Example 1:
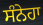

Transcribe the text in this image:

ਸੰਨੇਹਾ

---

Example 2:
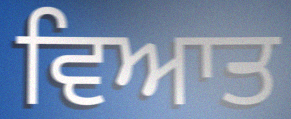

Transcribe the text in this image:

ਵਿਆਤ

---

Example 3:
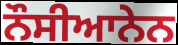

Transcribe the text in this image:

ਨੌਸੀਆਨੇਨ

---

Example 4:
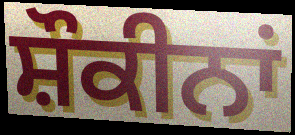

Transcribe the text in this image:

ਸ਼ੌਕੀਨਾਂ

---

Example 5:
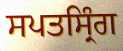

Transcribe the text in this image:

ਸਪਤਸ੍ਰਿੰਗ